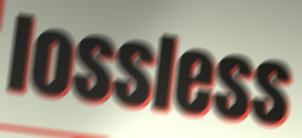
lossless